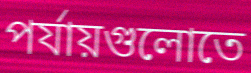
পর্যায়গুলোতে